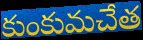
కుంకుమచేత